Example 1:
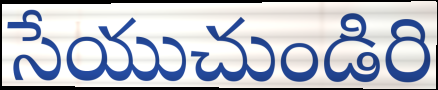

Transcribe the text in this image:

సేయుచుండిరి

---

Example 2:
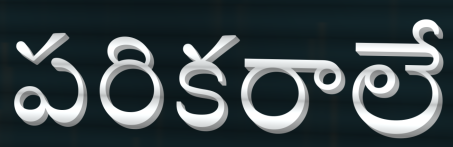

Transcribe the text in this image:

పరికరాలే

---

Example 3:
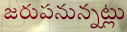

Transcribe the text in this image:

జరుపనున్నట్లు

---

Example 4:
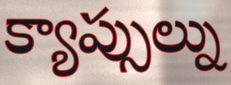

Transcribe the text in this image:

క్యాప్సుల్ను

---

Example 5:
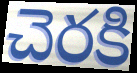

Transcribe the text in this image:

చెరకి